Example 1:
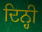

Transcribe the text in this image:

ਦਿਨ੍ਹੀ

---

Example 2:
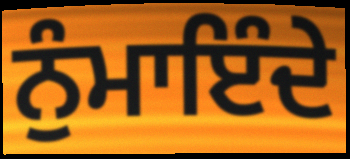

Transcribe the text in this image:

ਨੁੰਮਾਇੰਦੇ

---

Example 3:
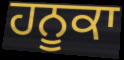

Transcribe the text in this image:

ਹਨੂਕਾ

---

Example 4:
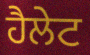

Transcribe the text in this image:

ਹੈਲੇਟ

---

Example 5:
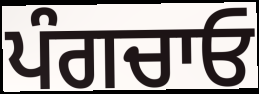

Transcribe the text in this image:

ਪੰਗਚਾਓ